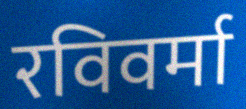
रविवर्मा